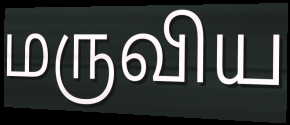
மருவிய